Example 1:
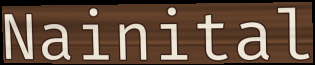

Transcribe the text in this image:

Nainital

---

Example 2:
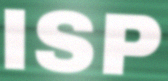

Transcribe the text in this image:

ISP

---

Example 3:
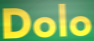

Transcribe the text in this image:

Dolo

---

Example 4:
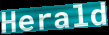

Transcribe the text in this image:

Herald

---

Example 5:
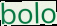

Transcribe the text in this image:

bolo